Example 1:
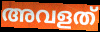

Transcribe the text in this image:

അവളത്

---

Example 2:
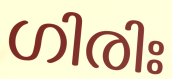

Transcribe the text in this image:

ഗിരിഃ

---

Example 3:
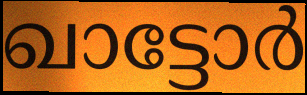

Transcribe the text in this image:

ഖാട്ടോർ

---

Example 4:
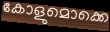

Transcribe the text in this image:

കോളുമൊക്കെ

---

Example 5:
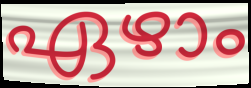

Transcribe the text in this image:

ഏഴാം